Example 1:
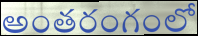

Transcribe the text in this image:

అంతరంగంలో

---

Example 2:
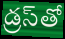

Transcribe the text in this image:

డ్రస్‌తో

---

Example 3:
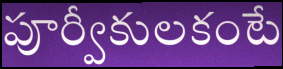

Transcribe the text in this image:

పూర్వీకులకంటే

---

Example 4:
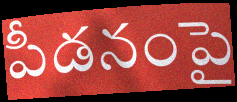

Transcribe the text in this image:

పీడనంపై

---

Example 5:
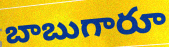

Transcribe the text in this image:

బాబుగారూ